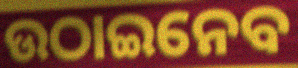
ଉଠାଇନେବ